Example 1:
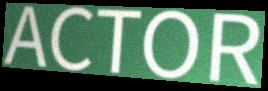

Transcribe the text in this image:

ACTOR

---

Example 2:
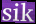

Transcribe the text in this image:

sik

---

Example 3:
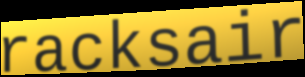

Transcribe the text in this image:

racksair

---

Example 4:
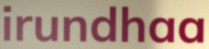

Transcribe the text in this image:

irundhaa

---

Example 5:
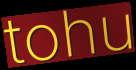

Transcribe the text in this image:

tohu